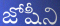
జోషీని